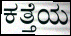
ಕತ್ತೆಯ